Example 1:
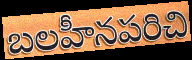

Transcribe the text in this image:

బలహీనపరిచి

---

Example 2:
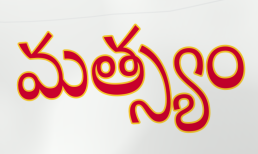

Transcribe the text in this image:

మత్స్యం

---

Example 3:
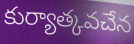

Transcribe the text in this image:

కుర్యాత్కవచేన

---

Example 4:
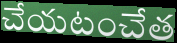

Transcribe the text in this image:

చేయటంచేత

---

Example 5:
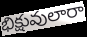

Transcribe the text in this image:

భిక్షువులారా